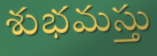
శుభమస్తు